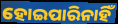
ହୋଇପାରିନାହିଁ